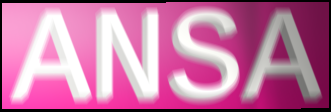
ANSA